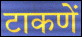
टाकणें